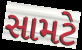
સામટે